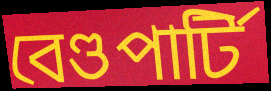
বেণ্ডপাৰ্টি